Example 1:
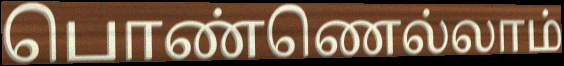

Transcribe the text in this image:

பொண்ணெல்லாம்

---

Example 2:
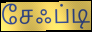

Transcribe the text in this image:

சேஃப்டி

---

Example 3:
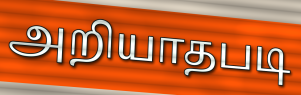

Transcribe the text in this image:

அறியாதபடி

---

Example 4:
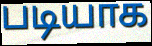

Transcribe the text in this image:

படியாக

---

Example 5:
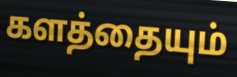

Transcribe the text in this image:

களத்தையும்